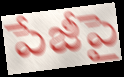
పేజీపై